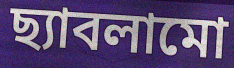
ছ্যাবলামো